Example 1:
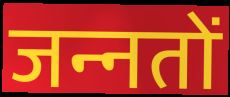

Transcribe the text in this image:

जन्नतों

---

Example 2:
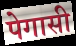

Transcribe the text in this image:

पेगासी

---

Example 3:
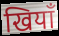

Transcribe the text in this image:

खियाँ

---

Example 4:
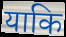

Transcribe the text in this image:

याकि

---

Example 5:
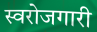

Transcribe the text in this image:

स्वरोजगारी